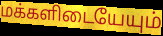
மக்களிடையேயும்